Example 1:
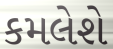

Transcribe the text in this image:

કમલેશે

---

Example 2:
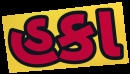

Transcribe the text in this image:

હકા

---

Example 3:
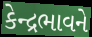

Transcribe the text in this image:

કેન્દ્રભાવને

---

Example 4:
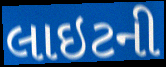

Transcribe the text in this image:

લાઇટની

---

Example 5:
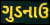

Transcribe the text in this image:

ગુડનાઉ